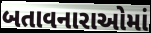
બતાવનારાઓમાં